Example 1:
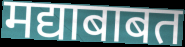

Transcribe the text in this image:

मद्याबाबत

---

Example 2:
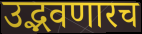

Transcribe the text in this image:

उद्भवणारच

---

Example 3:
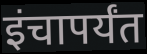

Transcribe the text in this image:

इंचापर्यंत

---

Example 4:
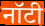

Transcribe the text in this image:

नॉटी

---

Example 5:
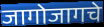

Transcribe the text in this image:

जागोजागचे